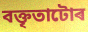
বক্তৃতাটোৰ